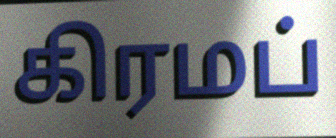
கிரமப்